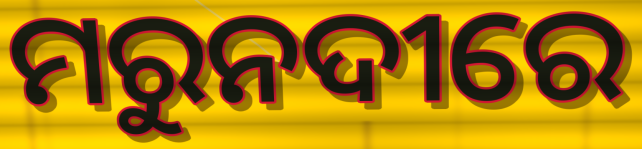
ମରୁନଦୀରେ